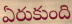
ఏరుకుంది